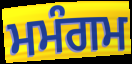
ਮਮੰਗਮ